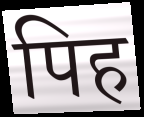
पिह